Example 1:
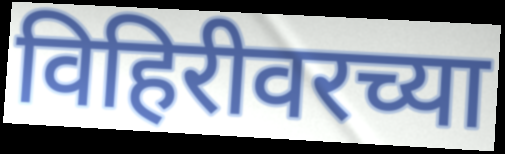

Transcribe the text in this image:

विहिरीवरच्या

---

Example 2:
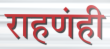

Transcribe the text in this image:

राहणंही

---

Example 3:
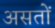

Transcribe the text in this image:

असतों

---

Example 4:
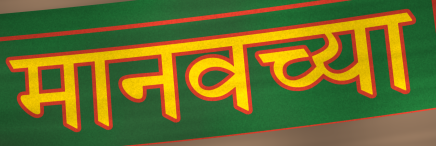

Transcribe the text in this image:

मानवच्या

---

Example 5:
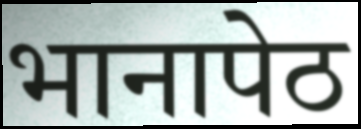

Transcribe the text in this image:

भानापेठ